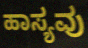
ಹಾಸ್ಯವು